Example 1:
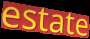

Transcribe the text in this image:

estate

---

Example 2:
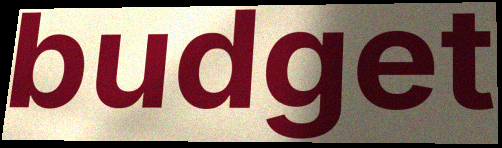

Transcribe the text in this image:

budget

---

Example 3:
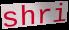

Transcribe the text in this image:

shri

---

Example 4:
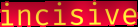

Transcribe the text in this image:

incisive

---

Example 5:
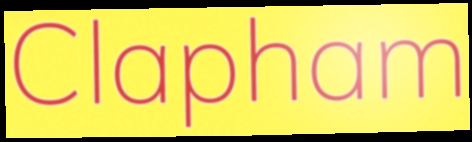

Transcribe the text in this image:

Clapham